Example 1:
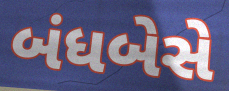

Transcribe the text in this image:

બંધબેસે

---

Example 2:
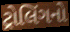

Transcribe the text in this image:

ટ્રોલિંગનો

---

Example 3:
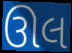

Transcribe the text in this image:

ઊલ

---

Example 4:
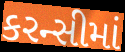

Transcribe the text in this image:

કરન્સીમાં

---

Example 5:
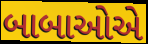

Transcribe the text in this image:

બાબાઓએ